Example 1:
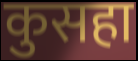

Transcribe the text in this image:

कुसहा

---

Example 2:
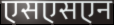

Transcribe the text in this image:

एसएसएन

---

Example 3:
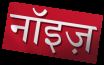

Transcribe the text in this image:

नॉइज़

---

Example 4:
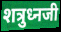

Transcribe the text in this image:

शत्रुध्नजी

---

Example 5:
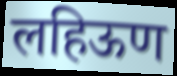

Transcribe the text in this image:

लहिऊण